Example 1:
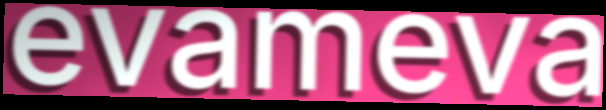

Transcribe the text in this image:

evameva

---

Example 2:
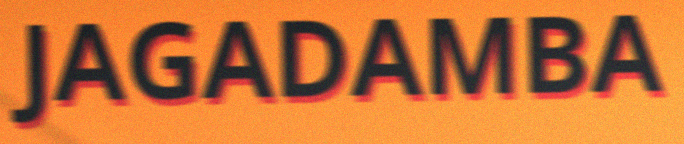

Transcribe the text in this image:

JAGADAMBA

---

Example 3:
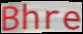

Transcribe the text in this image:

Bhre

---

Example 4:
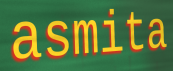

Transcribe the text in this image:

asmita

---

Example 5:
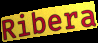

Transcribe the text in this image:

Ribera